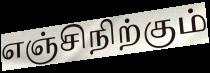
எஞ்சிநிற்கும்